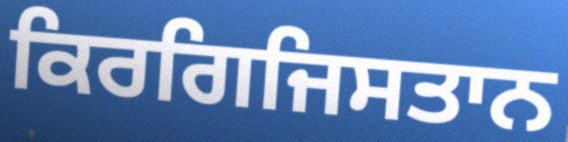
ਕਿਰਗਿਜਿਸਤਾਨ